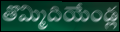
తొమ్మిదియేండ్ల